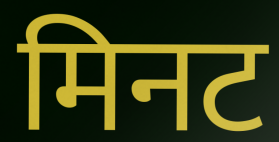
मिनट